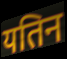
यतिन